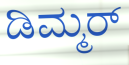
ಡಿಮ್ಮರ್